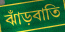
ঝাঁড়বাতি